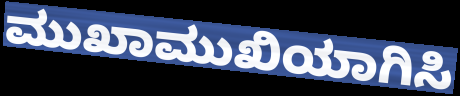
ಮುಖಾಮುಖಿಯಾಗಿಸಿ